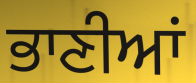
ਭਾਣੀਆਂ